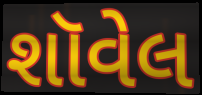
શૉવેલ